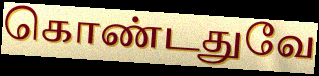
கொண்டதுவே